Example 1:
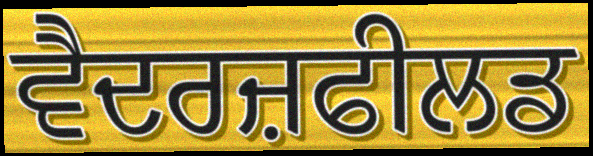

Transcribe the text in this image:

ਵੈਦਰਜ਼ਫੀਲਡ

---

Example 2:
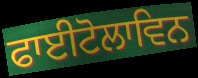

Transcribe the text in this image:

ਫਾਈਟੋਲਾਵਿਨ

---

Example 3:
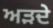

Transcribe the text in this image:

ਅੜਦੇ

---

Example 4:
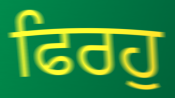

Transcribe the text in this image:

ਫਿਰਹੁ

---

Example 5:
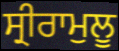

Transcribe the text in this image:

ਸ੍ਰੀਰਾਮੁਲੂ